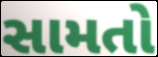
સામતો